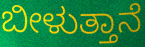
ಬೀಳುತ್ತಾನೆ